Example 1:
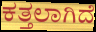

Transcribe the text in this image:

ಕತ್ತಲಾಗಿದೆ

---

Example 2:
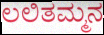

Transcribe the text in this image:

ಲಲಿತಮ್ಮನ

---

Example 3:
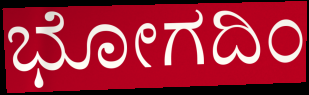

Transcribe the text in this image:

ಭೋಗದಿಂ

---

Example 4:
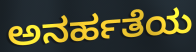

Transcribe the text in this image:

ಅನರ್ಹತೆಯ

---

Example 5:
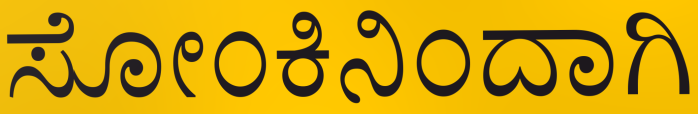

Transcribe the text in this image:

ಸೋಂಕಿನಿಂದಾಗಿ